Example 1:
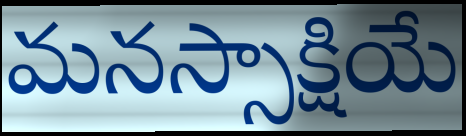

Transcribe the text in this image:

మనస్సాక్షియే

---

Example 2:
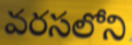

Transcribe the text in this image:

వరసలోని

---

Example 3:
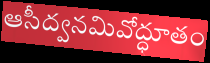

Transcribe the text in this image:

ఆసీద్వనమివోద్ధూతం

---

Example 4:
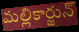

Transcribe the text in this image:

మల్లికార్జున్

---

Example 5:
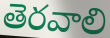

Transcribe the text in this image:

తెరవాలి